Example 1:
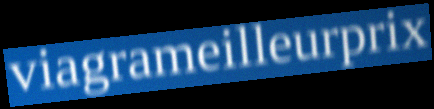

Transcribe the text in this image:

viagrameilleurprix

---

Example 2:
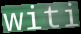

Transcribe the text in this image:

witi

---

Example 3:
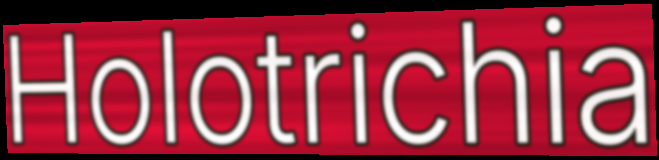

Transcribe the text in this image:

Holotrichia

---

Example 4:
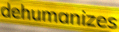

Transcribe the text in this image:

dehumanizes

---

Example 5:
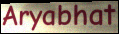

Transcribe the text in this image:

Aryabhat